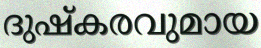
ദുഷ്കരവുമായ